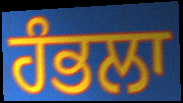
ਹੰਭਲਾ